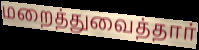
மறைத்துவைத்தார்